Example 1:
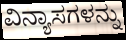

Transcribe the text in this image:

ವಿನ್ಯಾಸಗಳನ್ನು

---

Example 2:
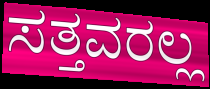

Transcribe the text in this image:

ಸತ್ತವರಲ್ಲ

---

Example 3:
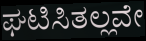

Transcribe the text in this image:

ಘಟಿಸಿತಲ್ಲವೇ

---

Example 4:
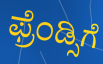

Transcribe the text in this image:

ಫ್ರೆಂಡ್ಸಿಗೆ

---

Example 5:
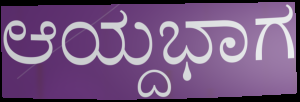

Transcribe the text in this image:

ಆಯ್ದಭಾಗ